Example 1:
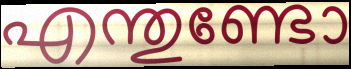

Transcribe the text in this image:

എന്തുണ്ടോ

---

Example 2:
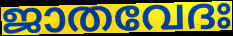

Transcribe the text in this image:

ജാതവേദഃ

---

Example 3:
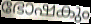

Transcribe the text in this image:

ഭോഷകും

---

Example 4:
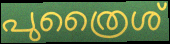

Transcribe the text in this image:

പുത്രൈശ്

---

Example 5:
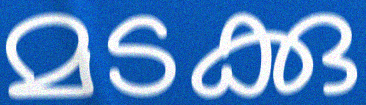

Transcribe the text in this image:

മടക്കു